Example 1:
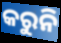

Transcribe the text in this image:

କରୁନି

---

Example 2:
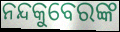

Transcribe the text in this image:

ନନ୍ଦକୁବେରଙ୍କ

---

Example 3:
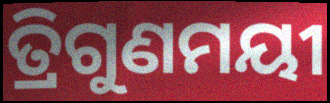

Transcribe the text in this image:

ତ୍ରିଗୁଣମୟୀ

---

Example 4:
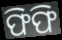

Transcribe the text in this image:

ଫିଫି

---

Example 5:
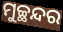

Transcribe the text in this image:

ମୁଚ୍ଛନ୍ଦର